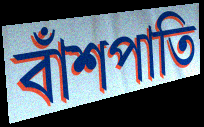
বাঁশপাতি